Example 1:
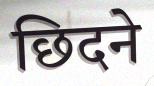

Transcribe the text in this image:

छिदने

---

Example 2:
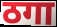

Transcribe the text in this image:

ठगा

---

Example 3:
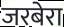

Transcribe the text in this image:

जरबेरा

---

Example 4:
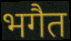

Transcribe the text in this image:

भगैत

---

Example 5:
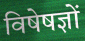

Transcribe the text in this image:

विषेषज्ञों